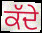
ਕੱਦੇ